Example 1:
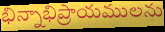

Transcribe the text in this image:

భిన్నాభిప్రాయములను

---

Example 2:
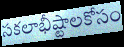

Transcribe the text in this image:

సకలాభీష్టాలకోసం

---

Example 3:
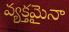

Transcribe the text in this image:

వ్యక్తమైనా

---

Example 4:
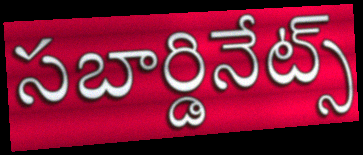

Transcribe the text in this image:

సబార్డినేట్స్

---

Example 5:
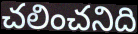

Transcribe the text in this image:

చలించనిది